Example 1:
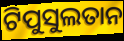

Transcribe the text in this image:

ଟିପୁସୁଲତାନ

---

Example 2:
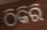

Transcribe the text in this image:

ଠିକିରି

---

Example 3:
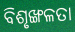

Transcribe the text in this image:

ବିଶୃଙ୍ଖଳତା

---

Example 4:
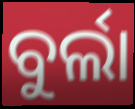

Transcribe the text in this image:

ବୁର୍ଲା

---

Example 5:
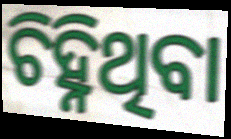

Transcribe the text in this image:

ଚିହ୍ନିଥିବା